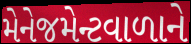
મેનેજમેન્ટવાળાને